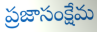
ప్రజాసంక్షేమ